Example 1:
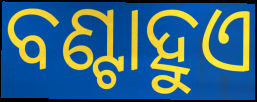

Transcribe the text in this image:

ବଣ୍ଟାହୁଏ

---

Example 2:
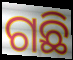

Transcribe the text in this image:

ଗଛି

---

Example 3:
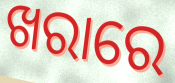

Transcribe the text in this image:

ଖରାରେ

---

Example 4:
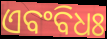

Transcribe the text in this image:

ଏବଂବିଧଃ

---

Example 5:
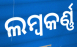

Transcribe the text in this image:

ଲମ୍ୱକର୍ଣ୍ଣ